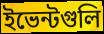
ইভেন্টগুলি